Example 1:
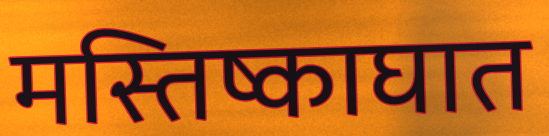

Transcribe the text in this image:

मस्तिष्काघात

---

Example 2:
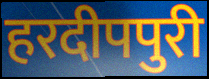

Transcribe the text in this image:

हरदीपपुरी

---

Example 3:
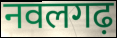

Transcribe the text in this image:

नवलगढ़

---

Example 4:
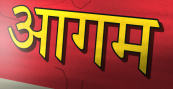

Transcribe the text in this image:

आगम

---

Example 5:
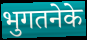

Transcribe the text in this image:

भुगतनेके